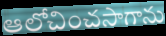
ఆలోచించసాగాను